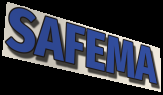
SAFEMA